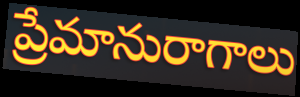
ప్రేమానురాగాలు